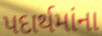
પદાર્થમાંના